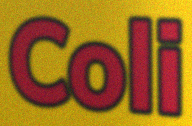
Coli